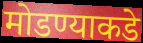
मोडण्याकडे